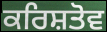
ਕਰਿਸ਼ਤੋਵ